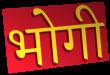
भोगी